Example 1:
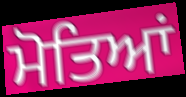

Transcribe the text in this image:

ਮੋਤਿਆਂ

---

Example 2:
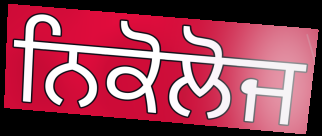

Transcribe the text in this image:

ਨਿਕੋਲੋਜ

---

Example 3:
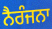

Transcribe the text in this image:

ਨੈਰੰਜਨਾ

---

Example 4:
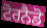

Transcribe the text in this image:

ਟੋਰਨੈਡੋ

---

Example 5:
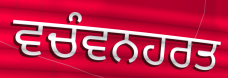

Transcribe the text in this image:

ਵਚੰਵਨਹਰਤ